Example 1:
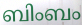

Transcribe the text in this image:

ബിംബം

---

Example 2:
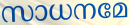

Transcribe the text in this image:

സാധനമേ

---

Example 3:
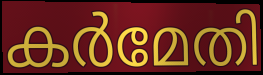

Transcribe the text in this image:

കർമേതി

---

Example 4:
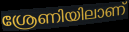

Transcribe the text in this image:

ശ്രേണിയിലാണ്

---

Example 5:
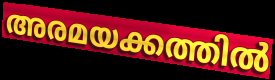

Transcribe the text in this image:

അരമയക്കത്തിൽ